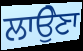
ਲਾਉੇਣਾ